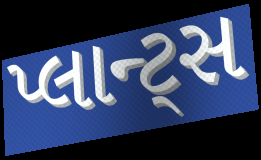
પ્લાન્ટ્સ